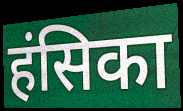
हंसिका